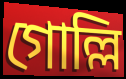
গোল্লি